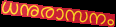
ധനുരാസനം